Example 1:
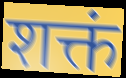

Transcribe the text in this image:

शक्तं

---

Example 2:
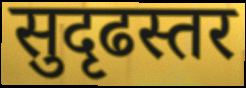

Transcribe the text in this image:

सुदृढस्तर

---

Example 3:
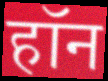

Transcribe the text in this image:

हॉन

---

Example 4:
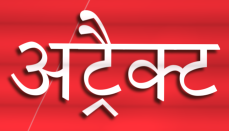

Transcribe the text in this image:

अट्रैक्ट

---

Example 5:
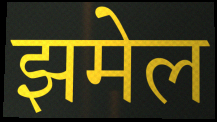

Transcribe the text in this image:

झमेल